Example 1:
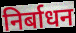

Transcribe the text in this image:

निर्बाधन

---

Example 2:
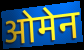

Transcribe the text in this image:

ओमेन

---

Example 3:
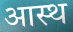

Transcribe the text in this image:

आस्थ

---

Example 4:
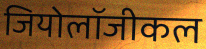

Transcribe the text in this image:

जियोलॉजीकल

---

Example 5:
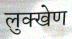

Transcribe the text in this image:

लुक्खेण